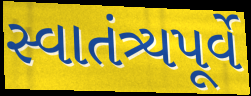
સ્વાતંત્ર્યપૂર્વે